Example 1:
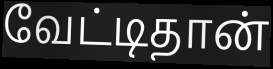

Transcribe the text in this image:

வேட்டிதான்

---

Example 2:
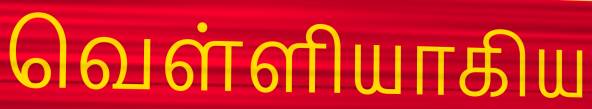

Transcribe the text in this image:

வெள்ளியாகிய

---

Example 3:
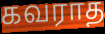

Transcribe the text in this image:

கவராத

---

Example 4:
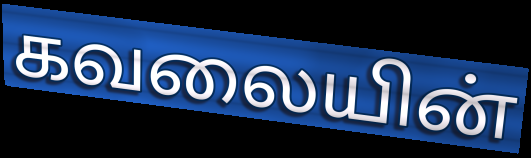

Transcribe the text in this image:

கவலையின்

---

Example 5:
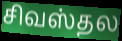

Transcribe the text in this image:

சிவஸ்தல